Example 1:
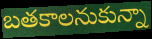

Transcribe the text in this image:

బతకాలనుకున్నా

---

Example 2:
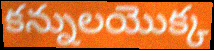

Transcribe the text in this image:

కన్నులయొక్క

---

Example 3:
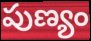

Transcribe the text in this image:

పుణ్యం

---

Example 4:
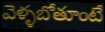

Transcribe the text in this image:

వెళ్ళబోతూంటే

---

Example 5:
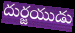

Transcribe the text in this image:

దుర్జయుడు